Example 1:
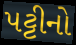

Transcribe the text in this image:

પટ્ટીનો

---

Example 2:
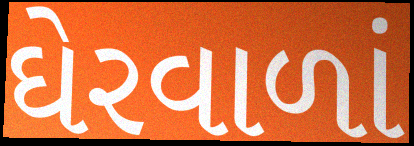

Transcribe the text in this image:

ઘેરવાળાં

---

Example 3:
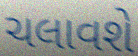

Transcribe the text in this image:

ચલાવશે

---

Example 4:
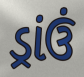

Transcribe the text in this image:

ડ્રાંઉં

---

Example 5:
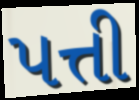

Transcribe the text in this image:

પત્તી